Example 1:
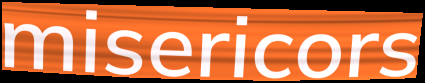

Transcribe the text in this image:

misericors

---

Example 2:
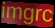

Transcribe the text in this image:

imgrc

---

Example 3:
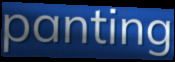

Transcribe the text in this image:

panting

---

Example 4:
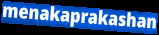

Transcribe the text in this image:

menakaprakashan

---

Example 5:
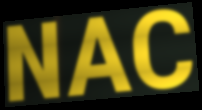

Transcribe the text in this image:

NAC